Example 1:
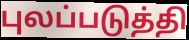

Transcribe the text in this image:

புலப்படுத்தி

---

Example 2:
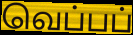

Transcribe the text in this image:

வெப்பப்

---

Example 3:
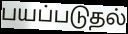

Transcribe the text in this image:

பயப்படுதல்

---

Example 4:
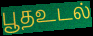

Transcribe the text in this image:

பூதஉடல்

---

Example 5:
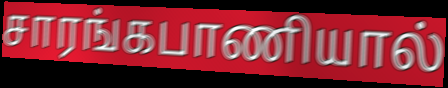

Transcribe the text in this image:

சாரங்கபாணியால்